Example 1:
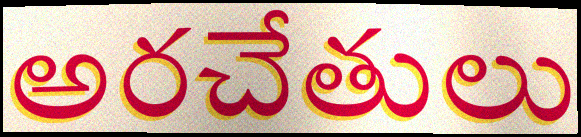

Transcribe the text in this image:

అరచేతులు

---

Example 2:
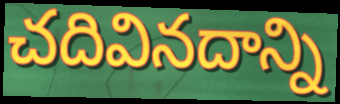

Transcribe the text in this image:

చదివినదాన్ని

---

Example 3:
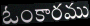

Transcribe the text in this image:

ఓంకారము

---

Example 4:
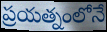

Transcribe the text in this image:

ప్రయత్నంలోనే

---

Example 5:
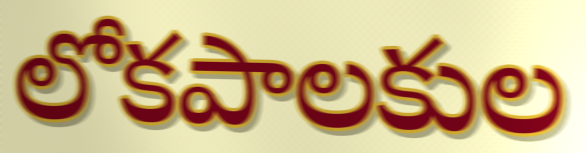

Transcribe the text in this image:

లోకపాలకుల